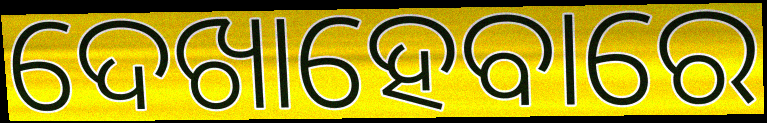
ଦେଖାହେବାରେ